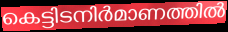
കെട്ടിടനിർമാണത്തിൽ